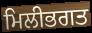
ਮਿਲੀਭਗਤ